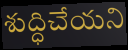
శుద్ధిచేయని